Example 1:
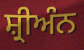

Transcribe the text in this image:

ਸ਼੍ਰੀਅੰਨ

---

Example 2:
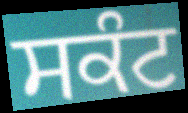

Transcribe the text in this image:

ਸਕੰਟ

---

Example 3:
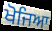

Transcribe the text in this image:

ਖੋਜਿਆ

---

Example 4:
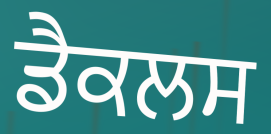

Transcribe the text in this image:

ਡੈਕਲਸ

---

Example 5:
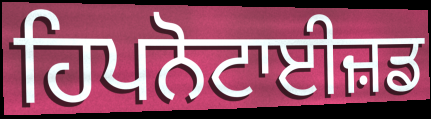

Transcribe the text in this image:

ਹਿਪਨੋਟਾਈਜ਼ਡ